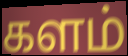
களம்